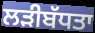
ਲੜੀਬੱਧਤਾ